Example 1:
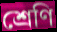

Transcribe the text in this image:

শ্রেণি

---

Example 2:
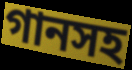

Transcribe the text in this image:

গানসহ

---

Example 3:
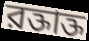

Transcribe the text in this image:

রক্তাক্ত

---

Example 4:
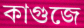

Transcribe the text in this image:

কাগুজে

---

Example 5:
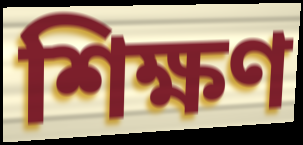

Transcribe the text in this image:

শিক্ষণ